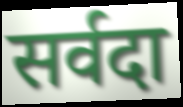
सर्वदा